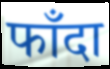
फाँदा